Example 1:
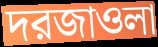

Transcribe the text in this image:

দরজাওলা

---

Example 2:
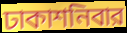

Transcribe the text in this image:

ঢাকাশনিবার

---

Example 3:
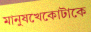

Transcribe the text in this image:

মানুষখেকোটাকে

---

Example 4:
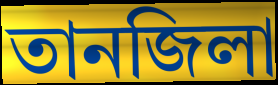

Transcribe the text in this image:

তানজিলা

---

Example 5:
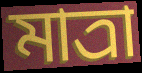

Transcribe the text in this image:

মাত্রা